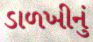
ડાળખીનું